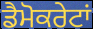
ਡੈਮੋਕਰੇਟਾਂ